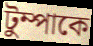
টুম্পাকে